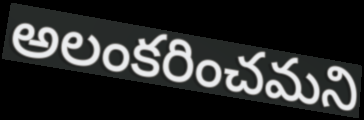
అలంకరించమని